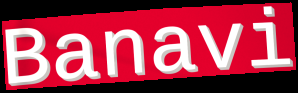
Banavi